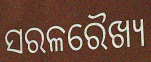
ସରଳରୈଖ୍ୟ